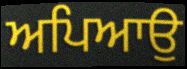
ਅਪਿਆਉ